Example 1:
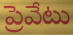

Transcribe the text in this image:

ప్రెవేటు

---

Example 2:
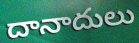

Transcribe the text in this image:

దానాదులు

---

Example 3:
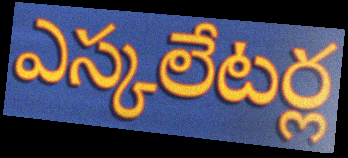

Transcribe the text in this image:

ఎస్కలేటర్ల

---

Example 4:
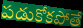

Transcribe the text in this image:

పడుకోకపోతే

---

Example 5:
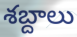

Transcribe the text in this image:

శబ్దాలు